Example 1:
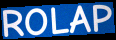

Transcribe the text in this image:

ROLAP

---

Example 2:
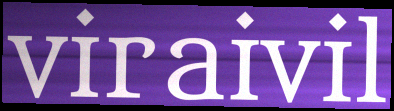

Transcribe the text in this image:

viraivil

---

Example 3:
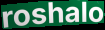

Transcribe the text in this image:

roshalo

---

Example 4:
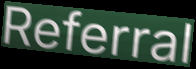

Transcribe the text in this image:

Referral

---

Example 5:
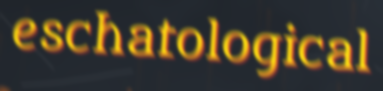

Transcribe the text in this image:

eschatological